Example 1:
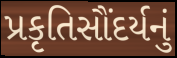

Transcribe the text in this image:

પ્રકૃતિસૌંદર્યનું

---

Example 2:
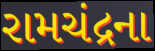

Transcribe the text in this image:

રામચંદ્રના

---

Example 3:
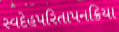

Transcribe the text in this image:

સ્વદેહપરિતાપનક્રિયા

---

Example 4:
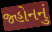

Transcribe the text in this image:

જ્હોનનું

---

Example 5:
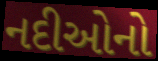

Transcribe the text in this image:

નદીઓનો